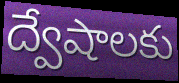
ద్వేషాలకు